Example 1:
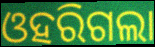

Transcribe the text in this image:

ଓହରିଗଲା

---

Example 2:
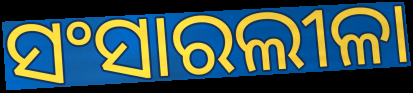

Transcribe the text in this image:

ସଂସାରଲୀଳା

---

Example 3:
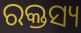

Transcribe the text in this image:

ରକ୍ତସ୍ୟ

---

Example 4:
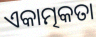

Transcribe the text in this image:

ଏକାତ୍ମକତା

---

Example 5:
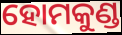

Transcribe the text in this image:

ହୋମକୁଣ୍ଡ